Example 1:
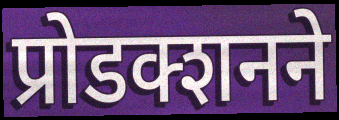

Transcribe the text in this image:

प्रोडक्शनने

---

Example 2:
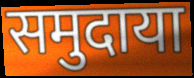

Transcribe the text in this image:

समुदाया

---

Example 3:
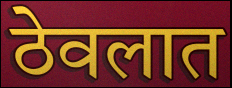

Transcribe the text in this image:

ठेवलात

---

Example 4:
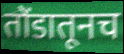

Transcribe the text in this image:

तोंडातूनच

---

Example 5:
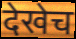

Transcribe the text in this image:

देखेच